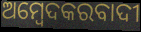
ଅମ୍ବେଦକରବାଦୀ